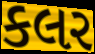
કલર